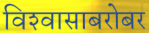
विश्वासाबरोबर